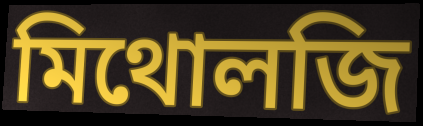
মিথোলজি